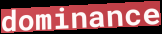
dominance